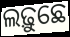
ଲଢ଼ୁଛେ